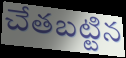
చేతబట్టిన